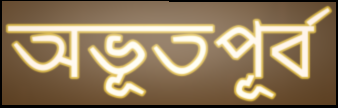
অভূতপূর্ব